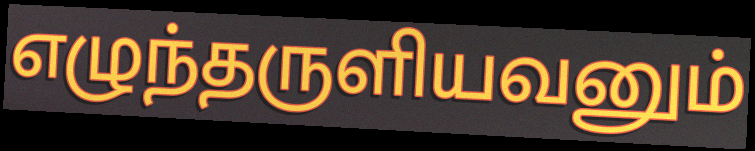
எழுந்தருளியவனும்